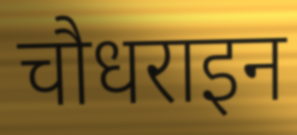
चौधराइन